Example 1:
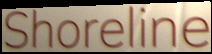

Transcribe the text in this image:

Shoreline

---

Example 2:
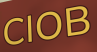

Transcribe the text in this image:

CIOB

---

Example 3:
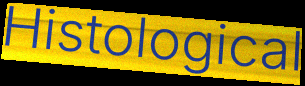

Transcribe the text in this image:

Histological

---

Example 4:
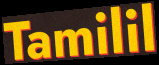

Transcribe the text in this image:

Tamilil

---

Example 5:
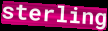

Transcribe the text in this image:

sterling